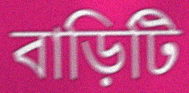
বাড়িটি